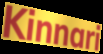
Kinnari